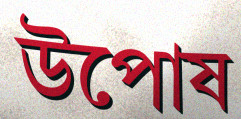
উপোষ